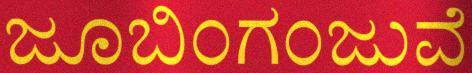
ಜೂಬಿಂಗಂಜುವೆ